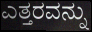
ಎತ್ತರವನ್ನು